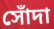
সোঁদা